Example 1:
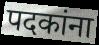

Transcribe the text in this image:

पदकांना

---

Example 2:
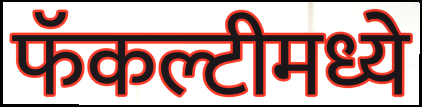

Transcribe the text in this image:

फॅकल्टीमध्ये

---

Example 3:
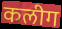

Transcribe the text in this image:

कलीग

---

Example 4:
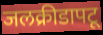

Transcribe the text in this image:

जलक्रीडापटू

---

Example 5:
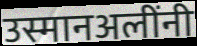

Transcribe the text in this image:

उस्मानअलींनी